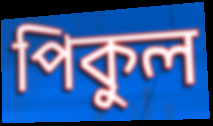
পিকুল